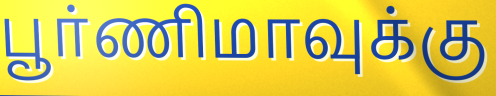
பூர்ணிமாவுக்கு